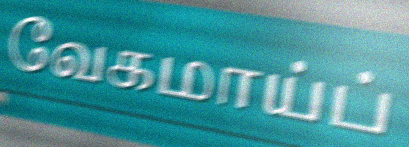
வேகமாய்ப்